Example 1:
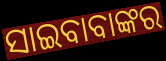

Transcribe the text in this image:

ସାଇବାବାଙ୍କର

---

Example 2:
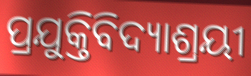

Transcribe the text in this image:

ପ୍ରଯୁକ୍ତିବିଦ୍ୟାଶ୍ରୟୀ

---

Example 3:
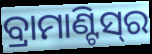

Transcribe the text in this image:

ବ୍ରାମାଣ୍ଟିସ୍‌ର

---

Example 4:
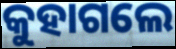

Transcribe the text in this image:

କୁହାଗଲେ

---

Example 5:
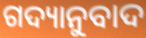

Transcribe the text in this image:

ଗଦ୍ୟାନୁବାଦ